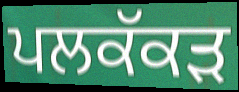
ਪਲਕੱਕੜ